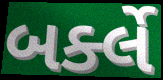
બર્ક્લે